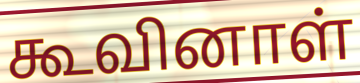
கூவினாள்